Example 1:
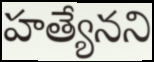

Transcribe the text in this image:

హత్యేనని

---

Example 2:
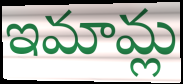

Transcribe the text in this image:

ఇమామ్ల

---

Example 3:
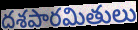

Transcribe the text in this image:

దశపారమితులు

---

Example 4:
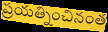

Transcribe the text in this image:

ప్రయత్నించినంత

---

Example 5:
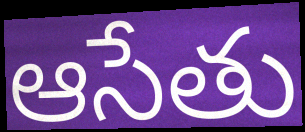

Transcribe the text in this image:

ఆసేతు